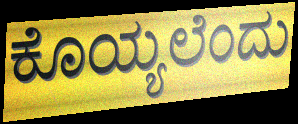
ಕೊಯ್ಯಲೆಂದು